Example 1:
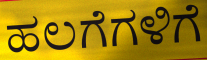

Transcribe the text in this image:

ಹಲಗೆಗಳಿಗೆ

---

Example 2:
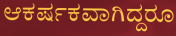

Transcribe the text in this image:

ಆಕರ್ಷಕವಾಗಿದ್ದರೂ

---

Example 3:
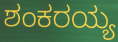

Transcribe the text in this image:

ಶಂಕರಯ್ಯ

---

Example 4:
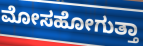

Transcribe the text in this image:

ಮೋಸಹೋಗುತ್ತಾ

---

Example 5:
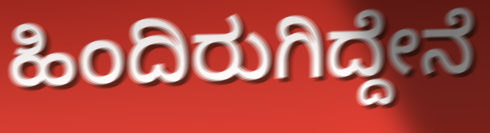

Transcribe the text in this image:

ಹಿಂದಿರುಗಿದ್ದೇನೆ